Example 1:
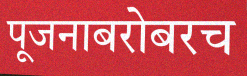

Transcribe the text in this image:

पूजनाबरोबरच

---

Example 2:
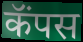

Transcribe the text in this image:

कॅंपस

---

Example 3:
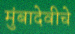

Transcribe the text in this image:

मुंबादेवीचे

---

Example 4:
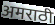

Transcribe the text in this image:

अमराठी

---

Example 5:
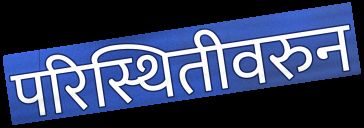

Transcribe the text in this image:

परिस्थितीवरुन